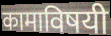
कामाविषयी